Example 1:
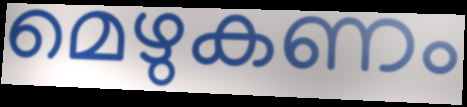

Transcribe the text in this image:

മെഴുകണം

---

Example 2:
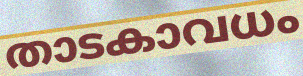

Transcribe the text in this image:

താടകാവധം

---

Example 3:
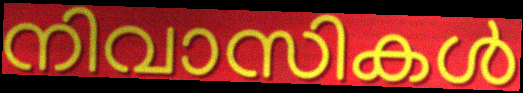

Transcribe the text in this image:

നിവാസികൾ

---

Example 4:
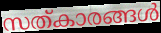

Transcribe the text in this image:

സത്കാരങ്ങൾ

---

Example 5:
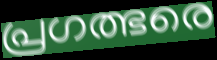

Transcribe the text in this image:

പ്രഗത്ഭരെ